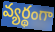
వ్యర్థంగా